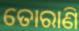
ତୋରାଣି